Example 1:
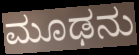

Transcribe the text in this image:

ಮೂಢನು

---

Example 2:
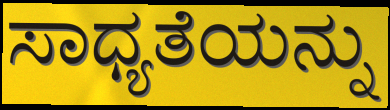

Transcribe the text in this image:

ಸಾಧ್ಯತೆಯನ್ನು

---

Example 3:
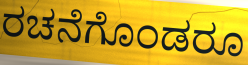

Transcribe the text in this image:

ರಚನೆಗೊಂಡರೂ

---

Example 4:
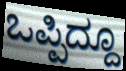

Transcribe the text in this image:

ಒಪ್ಪಿದ್ದೂ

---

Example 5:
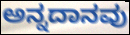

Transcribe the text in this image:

ಅನ್ನದಾನವು